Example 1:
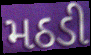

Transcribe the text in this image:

મઠડી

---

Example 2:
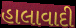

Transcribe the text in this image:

હાલાવાદી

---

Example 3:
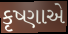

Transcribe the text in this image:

કૃષ્ણાએ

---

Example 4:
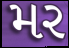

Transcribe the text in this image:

મર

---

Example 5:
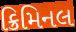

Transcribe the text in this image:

ક્રિમિનલ